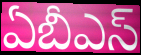
ఏబీఎస్